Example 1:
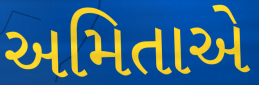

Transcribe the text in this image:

અમિતાએ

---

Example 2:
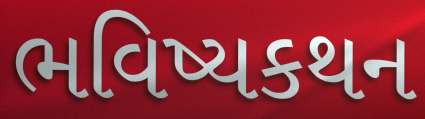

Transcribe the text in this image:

ભવિષ્યકથન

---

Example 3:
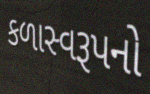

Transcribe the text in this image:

કળાસ્વરૂપનો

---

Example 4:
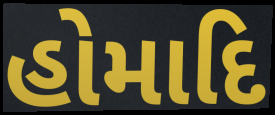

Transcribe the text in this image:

હોમાદિ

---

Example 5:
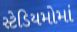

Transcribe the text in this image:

સ્ટેડિયમોમાં